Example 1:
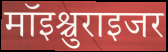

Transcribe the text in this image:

मॉइश्चुराइजर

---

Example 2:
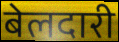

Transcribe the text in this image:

बेलदारी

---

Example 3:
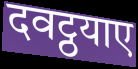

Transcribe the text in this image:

दवट्ठयाए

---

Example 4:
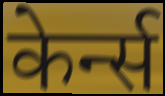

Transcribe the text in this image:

केर्न्स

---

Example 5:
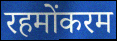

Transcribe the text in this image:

रहमोंकरम